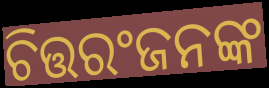
ଚିତ୍ତରଂଜନଙ୍କ